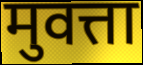
मुवत्ता